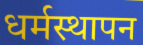
धर्मस्थापन